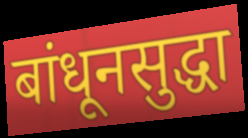
बांधूनसुद्धा